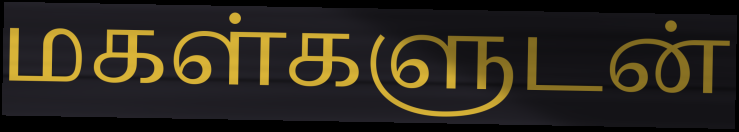
மகள்களுடன்